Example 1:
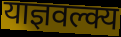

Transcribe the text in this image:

याज्ञवल्क्य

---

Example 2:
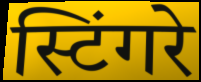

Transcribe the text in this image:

स्टिंगरे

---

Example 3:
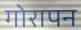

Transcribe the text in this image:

गोरापन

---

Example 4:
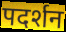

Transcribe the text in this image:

पदर्शन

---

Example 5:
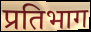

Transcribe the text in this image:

प्रतिभाग